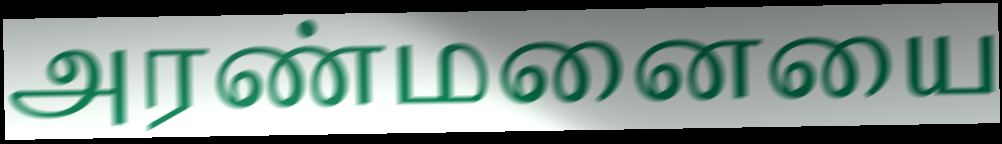
அரண்மனையை